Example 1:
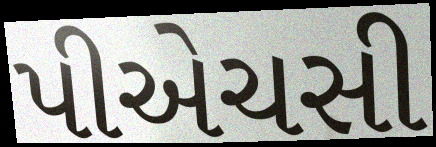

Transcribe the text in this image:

પીએચસી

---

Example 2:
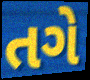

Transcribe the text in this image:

તગે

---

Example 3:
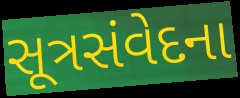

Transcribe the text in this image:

સૂત્રસંવેદના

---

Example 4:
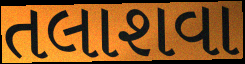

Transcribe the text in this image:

તલાશવા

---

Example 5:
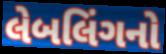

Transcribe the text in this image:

લેબલિંગનો